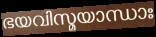
ഭയവിസ്മയാന്ധാഃ